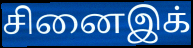
சினைஇக்